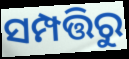
ସମ୍ପତ୍ତିରୁ